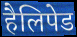
हैलिपेड